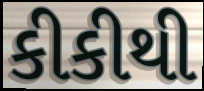
કીકીથી